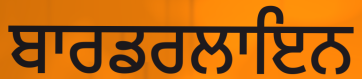
ਬਾਰਡਰਲਾਇਨ